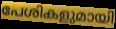
പേശികളുമായി